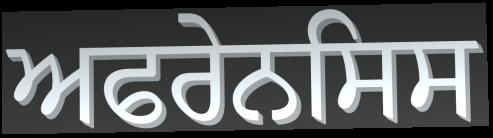
ਅਫਰੇਨਸਿਸ